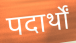
पदार्थों